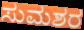
ಸುಮಶರ